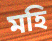
মহি